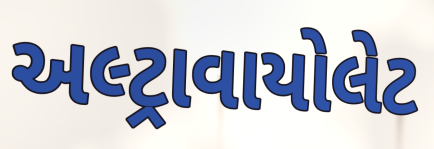
અલ્ટ્રાવાયોલેટ